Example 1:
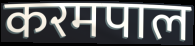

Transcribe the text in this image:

करमपाल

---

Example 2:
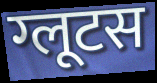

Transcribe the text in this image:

ग्लूटस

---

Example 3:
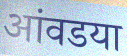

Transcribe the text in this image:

आंवडया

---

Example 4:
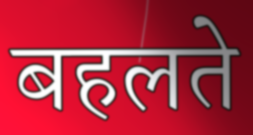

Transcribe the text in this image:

बहलते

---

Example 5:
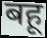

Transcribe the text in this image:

बहू